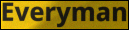
Everyman